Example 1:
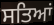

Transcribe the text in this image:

ਸਤਿਆਂ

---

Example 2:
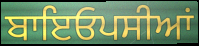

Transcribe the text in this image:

ਬਾਇਓਪਸੀਆਂ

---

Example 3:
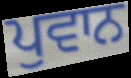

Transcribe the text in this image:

ਪੁਵਾਨ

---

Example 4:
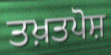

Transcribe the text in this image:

ਤਖ਼ਤਪੋਸ਼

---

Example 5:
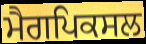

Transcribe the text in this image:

ਮੈਗਪਿਕਸਲ